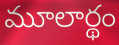
మూలార్థం